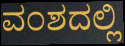
ವಂಶದಲ್ಲಿ